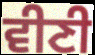
ਵੀਣੀ